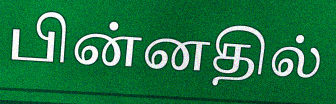
பின்னதில்